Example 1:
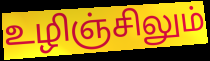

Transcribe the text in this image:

உழிஞ்சிலும்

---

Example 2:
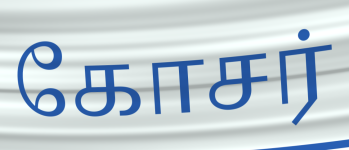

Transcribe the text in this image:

கோசர்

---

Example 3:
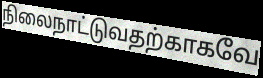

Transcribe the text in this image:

நிலைநாட்டுவதற்காகவே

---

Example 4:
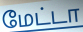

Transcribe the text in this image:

மேட்டா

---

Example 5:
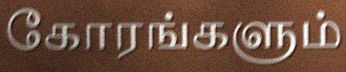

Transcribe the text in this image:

கோரங்களும்